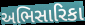
અભિસારિકા